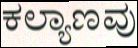
ಕಲ್ಯಾಣವು